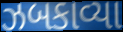
ઝબકાવ્યા